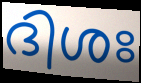
ദിശഃ